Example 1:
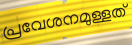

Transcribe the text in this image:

പ്രവേശനമുള്ളത്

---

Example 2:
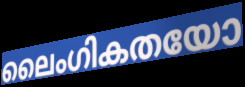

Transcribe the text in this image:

ലൈംഗികതയോ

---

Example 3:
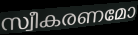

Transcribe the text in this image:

സ്വീകരണമോ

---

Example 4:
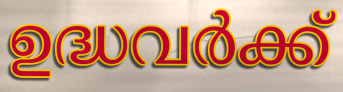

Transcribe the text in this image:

ഉദ്ധവർക്ക്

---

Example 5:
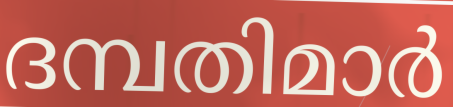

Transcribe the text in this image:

ദമ്പതിമാർ